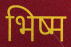
भिष्म